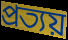
প্ৰত্যয়